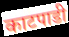
काटपाडी